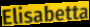
Elisabetta